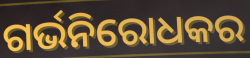
ଗର୍ଭନିରୋଧକର